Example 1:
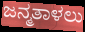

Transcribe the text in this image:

ಜನ್ಮತಾಳಲು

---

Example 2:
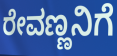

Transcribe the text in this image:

ರೇವಣ್ಣನಿಗೆ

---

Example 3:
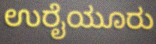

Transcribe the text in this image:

ಉರೈಯೂರು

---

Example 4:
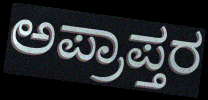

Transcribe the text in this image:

ಅಪ್ರಾಪ್ತರ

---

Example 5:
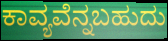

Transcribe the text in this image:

ಕಾವ್ಯವೆನ್ನಬಹುದು